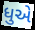
ધુએ